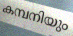
കമ്പനിയും